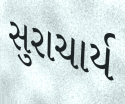
સુરાચાર્ય